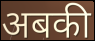
अबकी